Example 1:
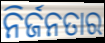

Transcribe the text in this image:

ନିର୍ଜନତାର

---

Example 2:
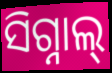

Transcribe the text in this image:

ସିଗ୍ନାଲ୍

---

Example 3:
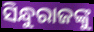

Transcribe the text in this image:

ସିନ୍ଧୁରାଜଙ୍କୁ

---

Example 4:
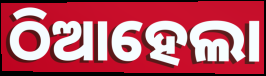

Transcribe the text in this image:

ଠିଆହେଲା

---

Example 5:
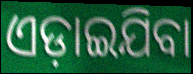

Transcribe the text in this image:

ଏଡ଼ାଇଯିବା